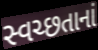
સ્વચ્છતાનાં